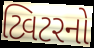
ટ્વિટરનો